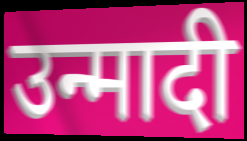
उन्मादी